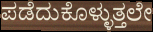
ಪಡೆದುಕೊಳ್ಳುತ್ತಲೇ